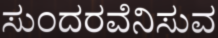
ಸುಂದರವೆನಿಸುವ